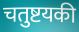
चतुष्टयकी